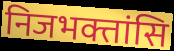
निजभक्तांसि